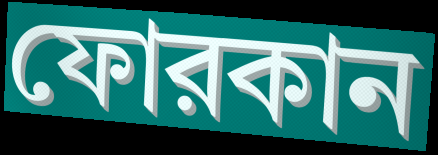
ফোরকান